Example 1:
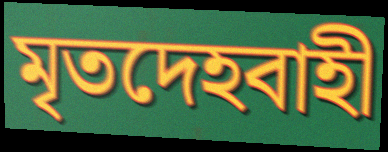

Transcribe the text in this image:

মৃতদেহবাহী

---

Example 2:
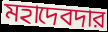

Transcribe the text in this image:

মহাদেবদার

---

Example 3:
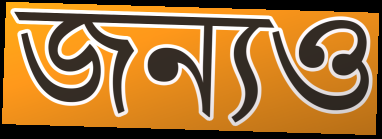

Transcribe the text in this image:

জন্যও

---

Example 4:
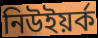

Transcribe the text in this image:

নিউইয়র্ক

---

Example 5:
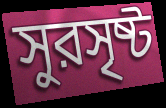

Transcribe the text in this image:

সুরসৃষ্ট